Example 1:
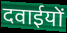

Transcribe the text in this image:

दवाईयों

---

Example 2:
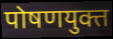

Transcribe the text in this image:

पोषणयुक्त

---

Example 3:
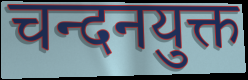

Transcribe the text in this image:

चन्दनयुक्त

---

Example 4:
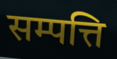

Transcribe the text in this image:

सम्पत्ति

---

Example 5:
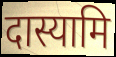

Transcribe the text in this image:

दास्यामि